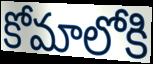
కోమాలోకి